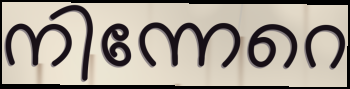
നിന്നേറെ